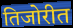
तिजोरीत